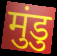
मुंडु